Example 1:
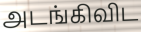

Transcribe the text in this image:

அடங்கிவிட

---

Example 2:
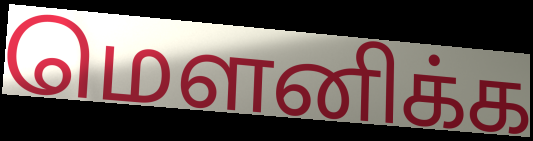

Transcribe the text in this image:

மெளனிக்க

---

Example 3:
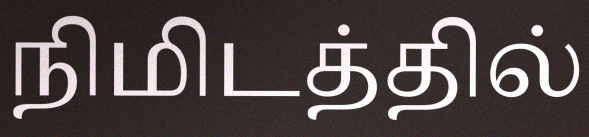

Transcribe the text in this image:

நிமிடத்தில்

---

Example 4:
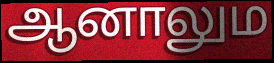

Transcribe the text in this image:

ஆனாலும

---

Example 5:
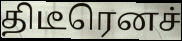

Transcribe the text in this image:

திடீரெனச்